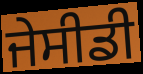
ਜੇਸੀਡੀ